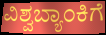
ವಿಶ್ವಬ್ಯಾಂಕಿಗೆ